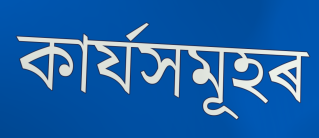
কাৰ্যসমূহৰ